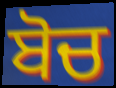
ਬੋਚ